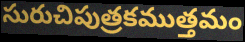
సురుచిపుత్రకముత్తమం